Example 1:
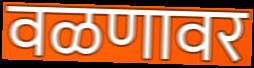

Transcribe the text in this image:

वळणावर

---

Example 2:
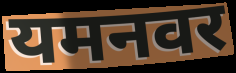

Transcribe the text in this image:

यमनवर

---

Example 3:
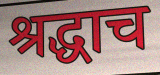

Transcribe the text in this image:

श्रद्धाच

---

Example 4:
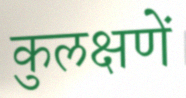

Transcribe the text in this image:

कुलक्षणें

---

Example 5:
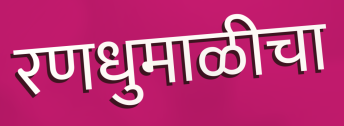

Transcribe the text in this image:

रणधुमाळीचा